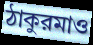
ঠাকুরমাও